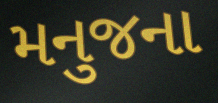
મનુજના